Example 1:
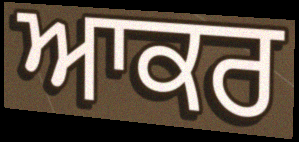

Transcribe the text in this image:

ਆਕਰ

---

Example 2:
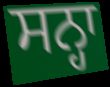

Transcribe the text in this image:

ਸਨ੍ਹਾ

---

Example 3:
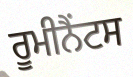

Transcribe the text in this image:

ਰੂਮੀਨੈਂਟਸ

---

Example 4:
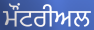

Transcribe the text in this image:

ਮੌਂਟਰੀਅਲ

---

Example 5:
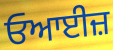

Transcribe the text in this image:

ਓਆਈਜ਼